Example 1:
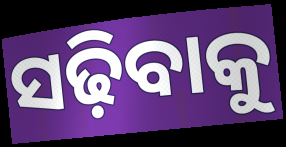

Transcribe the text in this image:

ସଢ଼ିବାକୁ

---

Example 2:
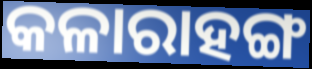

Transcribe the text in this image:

କଳାରାହଙ୍ଗ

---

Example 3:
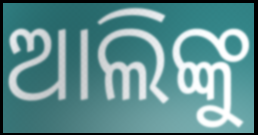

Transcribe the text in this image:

ଆଲିଙ୍କୁ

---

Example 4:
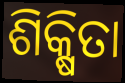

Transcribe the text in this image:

ଶିକ୍ଷିତା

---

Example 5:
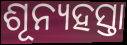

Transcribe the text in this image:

ଶୂନ୍ୟହସ୍ତା